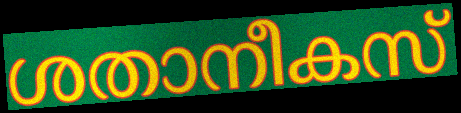
ശതാനീകസ്